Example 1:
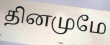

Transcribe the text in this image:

தினமுமே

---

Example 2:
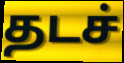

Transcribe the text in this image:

தடச்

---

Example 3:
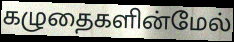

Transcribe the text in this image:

கழுதைகளின்மேல்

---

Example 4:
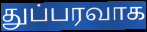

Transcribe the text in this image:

துப்பரவாக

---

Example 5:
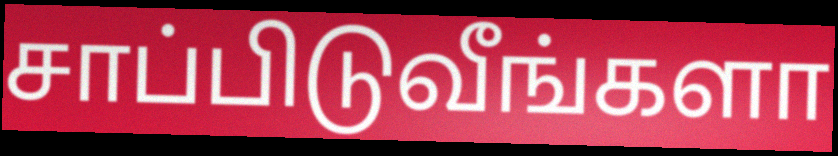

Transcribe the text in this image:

சாப்பிடுவீங்களா